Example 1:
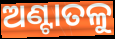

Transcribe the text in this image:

ଅଣ୍ଟାତଳୁ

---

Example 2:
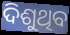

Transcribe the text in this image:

ଦିଶୁଥିବ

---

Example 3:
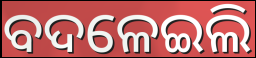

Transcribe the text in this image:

ବଦଳେଇଲି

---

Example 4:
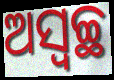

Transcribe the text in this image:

ଅସ୍ଵଚ୍ଛ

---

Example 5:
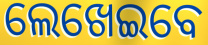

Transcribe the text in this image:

ଲେଖେଇବେ